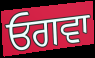
ਓਗਵਾ